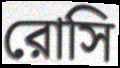
রোসি